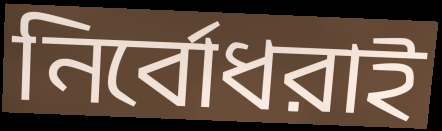
নির্বোধরাই